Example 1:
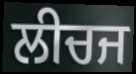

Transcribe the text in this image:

ਲੀਚਜ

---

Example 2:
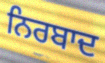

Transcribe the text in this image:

ਨਿਰਬਾਦ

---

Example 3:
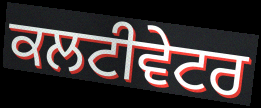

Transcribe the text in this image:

ਕਲਟੀਵੇਟਰ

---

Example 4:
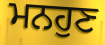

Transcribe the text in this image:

ਮਨਹੁਣ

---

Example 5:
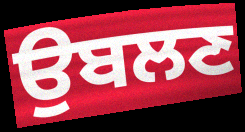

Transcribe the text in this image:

ਉਬਲਣ